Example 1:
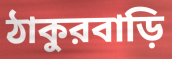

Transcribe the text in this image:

ঠাকুরবাড়ি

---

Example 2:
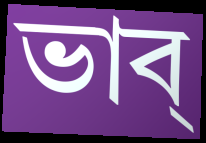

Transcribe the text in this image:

ভাব্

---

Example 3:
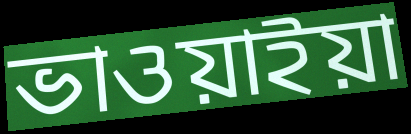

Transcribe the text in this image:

ভাওয়াইয়া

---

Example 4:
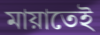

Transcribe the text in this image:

মায়াতেই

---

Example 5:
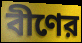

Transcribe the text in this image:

বীণের